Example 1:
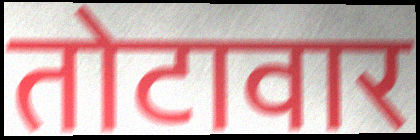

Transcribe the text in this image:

तोटावार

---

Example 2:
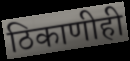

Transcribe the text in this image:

ठिकाणीही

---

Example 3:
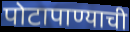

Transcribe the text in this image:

पोटापाण्याची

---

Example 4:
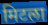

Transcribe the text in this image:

मिटला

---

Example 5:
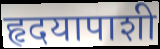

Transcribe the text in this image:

हृदयापाशी